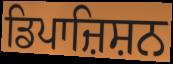
ਡਿਪਾਜ਼ਿਸ਼ਨ